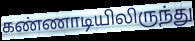
கண்ணாடியிலிருந்து